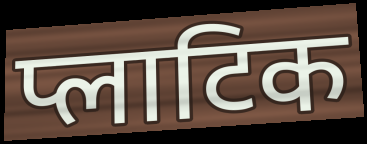
प्लाटिक